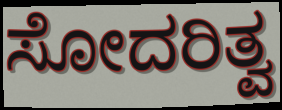
ಸೋದರಿತ್ವ